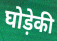
घोड़ेकी